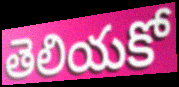
తెలియకో